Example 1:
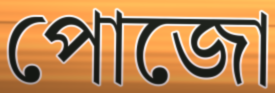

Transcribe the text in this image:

পোজো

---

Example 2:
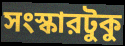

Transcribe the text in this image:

সংস্কারটুকু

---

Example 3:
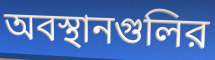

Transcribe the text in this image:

অবস্থানগুলির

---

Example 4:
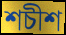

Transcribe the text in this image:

শচীশ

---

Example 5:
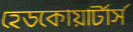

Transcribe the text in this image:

হেডকোয়ার্টার্স